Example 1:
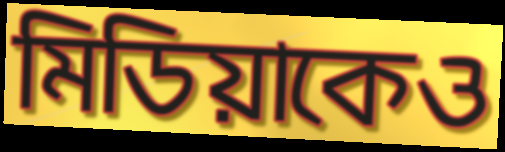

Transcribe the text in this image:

মিডিয়াকেও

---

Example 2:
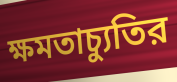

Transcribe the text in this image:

ক্ষমতাচ্যুতির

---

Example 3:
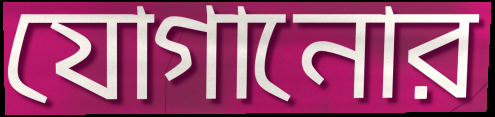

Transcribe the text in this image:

যোগানোর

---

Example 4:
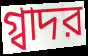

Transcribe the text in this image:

গ্বাদর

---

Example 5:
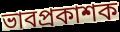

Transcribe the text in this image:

ভাবপ্রকাশক